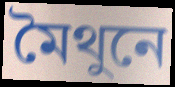
মৈথুনে